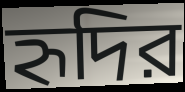
হৃদির